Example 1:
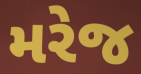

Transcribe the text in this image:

મરેજ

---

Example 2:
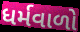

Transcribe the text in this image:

ધર્મવાળો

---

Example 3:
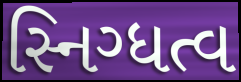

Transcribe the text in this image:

સ્નિગ્ધત્વ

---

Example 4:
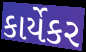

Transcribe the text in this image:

કાર્યેકર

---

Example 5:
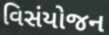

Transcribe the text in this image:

વિસંયોજન